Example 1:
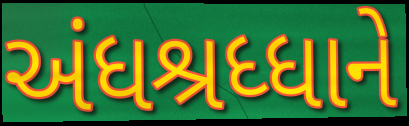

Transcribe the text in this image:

અંધશ્રધ્ધાને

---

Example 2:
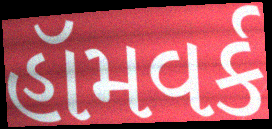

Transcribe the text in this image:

હૉમવર્ક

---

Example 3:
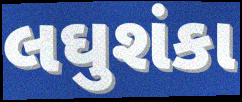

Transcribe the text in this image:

લઘુશંકા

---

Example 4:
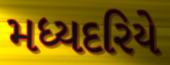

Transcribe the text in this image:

મધ્યદરિયે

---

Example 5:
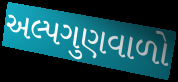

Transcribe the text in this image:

અલ્પગુણવાળો